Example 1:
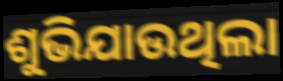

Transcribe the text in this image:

ଶୁଭିଯାଉଥିଲା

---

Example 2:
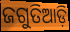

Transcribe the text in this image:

ଜଗୁତିଆଡ଼ି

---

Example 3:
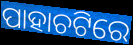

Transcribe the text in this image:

ପାହାଚଟିରେ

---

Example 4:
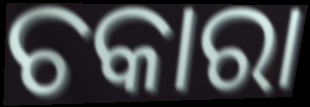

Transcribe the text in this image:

ଚକାରା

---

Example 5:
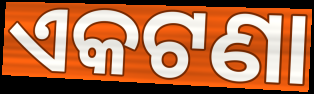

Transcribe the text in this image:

ଏକଟଣା